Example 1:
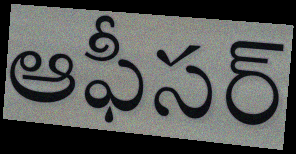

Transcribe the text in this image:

ఆఫీసర్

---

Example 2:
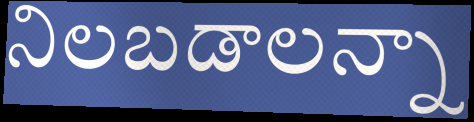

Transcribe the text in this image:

నిలబడాలన్నా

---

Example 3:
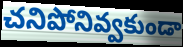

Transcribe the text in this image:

చనిపోనివ్వకుండా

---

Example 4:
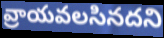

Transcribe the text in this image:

వ్రాయవలసినదని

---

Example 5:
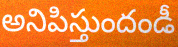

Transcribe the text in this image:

అనిపిస్తుందండీ